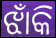
ଝାଁକି